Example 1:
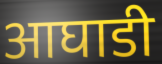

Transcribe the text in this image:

आघाडी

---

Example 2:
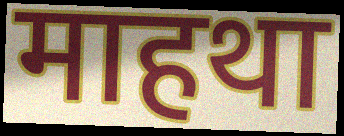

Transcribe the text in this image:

माहथा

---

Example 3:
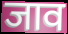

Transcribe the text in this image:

जाव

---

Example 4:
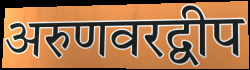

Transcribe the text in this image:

अरुणवरद्वीप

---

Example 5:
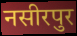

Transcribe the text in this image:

नसीरपुर